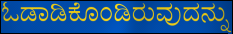
ಓಡಾಡಿಕೊಂಡಿರುವುದನ್ನು